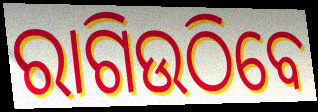
ରାଗିଉଠିବେ